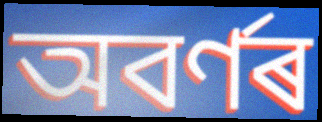
অবৰ্ণৰ